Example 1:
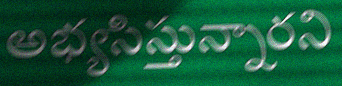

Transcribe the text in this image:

అభ్యసిస్తున్నారని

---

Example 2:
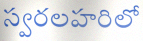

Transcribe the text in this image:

స్వరలహరిలో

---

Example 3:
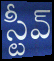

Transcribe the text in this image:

స్టీవ్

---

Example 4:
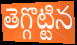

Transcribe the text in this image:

తెగ్గొట్టిన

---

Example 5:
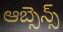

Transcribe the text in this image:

ఆబ్సెన్స్